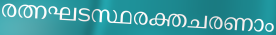
രത്നഘടസ്ഥരക്തചരണാം